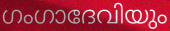
ഗംഗാദേവിയും